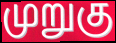
முறுகு